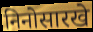
निनोसारखे